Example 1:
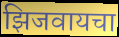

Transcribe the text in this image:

झिजवायचा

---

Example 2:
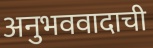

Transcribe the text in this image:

अनुभववादाची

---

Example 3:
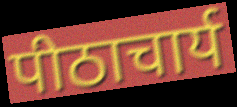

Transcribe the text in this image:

पीठाचार्य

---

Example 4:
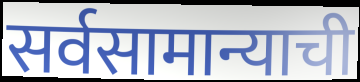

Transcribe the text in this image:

सर्वसामान्याची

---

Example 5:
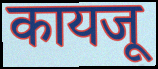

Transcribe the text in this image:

कायजू